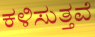
ಕಳಿಸುತ್ತವೆ